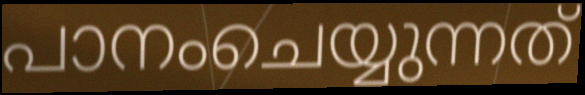
പാനംചെയ്യുന്നത്